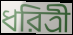
ধরিত্রী